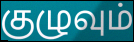
குழுவும்